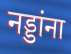
नड्डांना